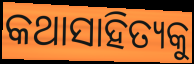
କଥାସାହିତ୍ୟକୁ